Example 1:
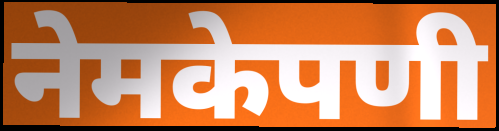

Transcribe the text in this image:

नेमकेपणी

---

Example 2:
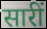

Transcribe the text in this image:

सारीं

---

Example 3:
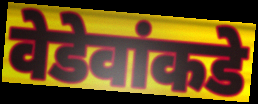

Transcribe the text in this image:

वेडेवांकडे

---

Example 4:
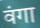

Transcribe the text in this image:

वंगा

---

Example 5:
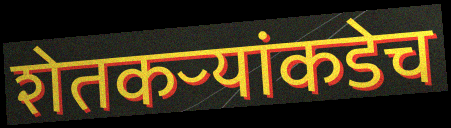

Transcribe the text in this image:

शेतकऱ्यांकडेच